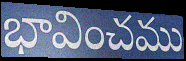
భావించము